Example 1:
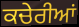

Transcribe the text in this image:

ਕਚੇਰੀਆਂ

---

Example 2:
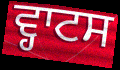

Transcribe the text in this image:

ਵ੍ਹਾਟਸ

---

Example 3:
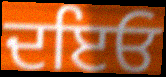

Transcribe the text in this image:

ਦਇਓ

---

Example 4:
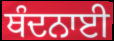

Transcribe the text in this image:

ਥੰਦਨਾਈ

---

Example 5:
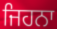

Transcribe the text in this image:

ਜਿਹਨਾ